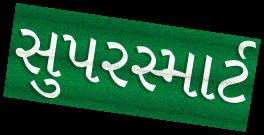
સુપરસ્માર્ટ